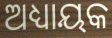
ଅଧ୍ୟାୟକ